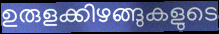
ഉരുളക്കിഴങ്ങുകളുടെ